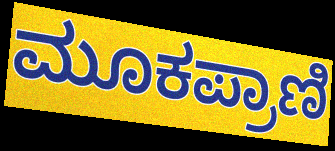
ಮೂಕಪ್ರಾಣಿ